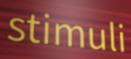
stimuli